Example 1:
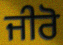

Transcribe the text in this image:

ਜੀਰੋ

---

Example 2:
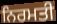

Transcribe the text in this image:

ਨਿਰਮਤੀ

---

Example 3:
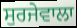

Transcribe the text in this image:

ਸੁਰਜੇਵਾਲਾ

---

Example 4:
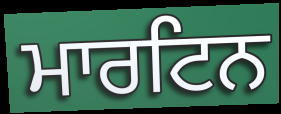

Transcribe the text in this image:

ਮਾਰਟਿਨ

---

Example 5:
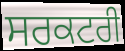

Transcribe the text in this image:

ਸਰਕਟਰੀ